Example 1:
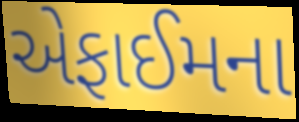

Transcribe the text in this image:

એફાઈમના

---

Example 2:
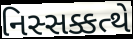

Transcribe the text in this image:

નિસ્સક્કત્થે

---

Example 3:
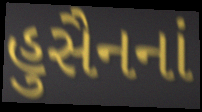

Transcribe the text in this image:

હુસૈનનાં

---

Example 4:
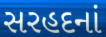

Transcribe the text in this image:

સરહદનાં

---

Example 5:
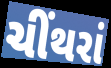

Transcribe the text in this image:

ચીંથરાં